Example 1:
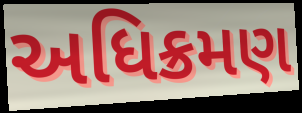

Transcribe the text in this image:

અધિક્રમણ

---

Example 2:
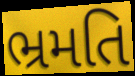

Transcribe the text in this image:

ભ્રમતિ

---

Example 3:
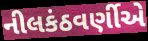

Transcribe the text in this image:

નીલકંઠવર્ણીએ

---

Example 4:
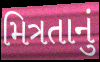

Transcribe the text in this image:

મિત્રતાનું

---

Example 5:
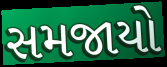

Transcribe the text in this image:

સમજાયો